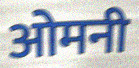
ओमनी